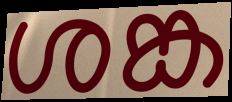
ശങ്ക